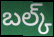
బల్క్